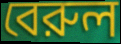
বেরুল